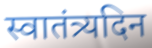
स्वातंत्र्यदिन